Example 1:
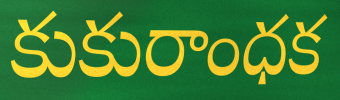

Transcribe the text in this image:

కుకురాంధక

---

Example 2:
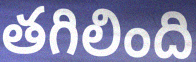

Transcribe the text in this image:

తగిలింది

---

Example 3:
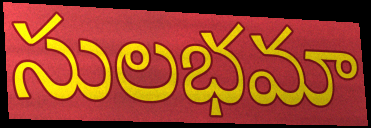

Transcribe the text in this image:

సులభమా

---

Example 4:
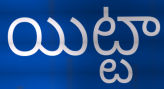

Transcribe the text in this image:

యిట్టా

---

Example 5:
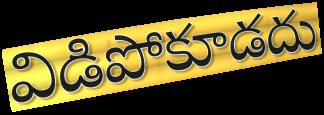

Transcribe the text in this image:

విడిపోకూడదు